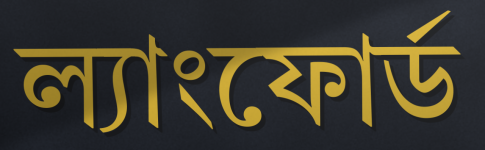
ল্যাংফোর্ড